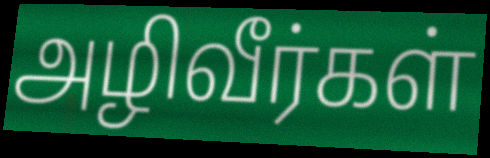
அழிவீர்கள்